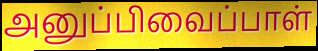
அனுப்பிவைப்பாள்